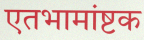
एतभामांष्टक